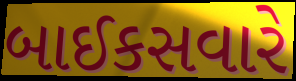
બાઈકસવારે